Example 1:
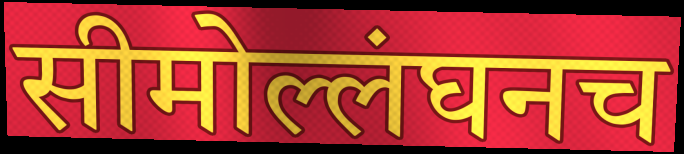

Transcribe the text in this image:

सीमोल्लंघनच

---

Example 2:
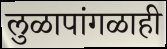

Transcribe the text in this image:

लुळापांगळाही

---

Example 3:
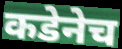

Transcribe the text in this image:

कडेनेच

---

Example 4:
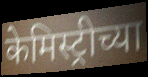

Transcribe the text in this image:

केमिस्ट्रीच्या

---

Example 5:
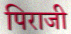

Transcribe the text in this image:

पिराजी